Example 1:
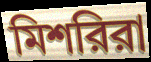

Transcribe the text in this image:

মিশরিরা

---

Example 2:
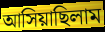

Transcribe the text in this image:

আসিয়াছিলাম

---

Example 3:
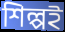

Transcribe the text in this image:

শিল্পই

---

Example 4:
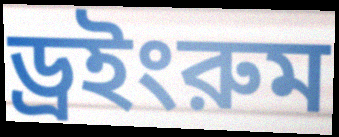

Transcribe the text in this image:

ড্রইংরুম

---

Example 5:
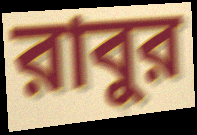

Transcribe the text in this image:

রাবুর